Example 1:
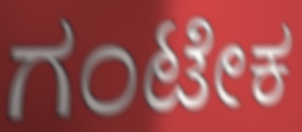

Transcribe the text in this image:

ಗಂಟೇಕ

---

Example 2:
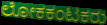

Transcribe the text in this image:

ಲೋಕಕಂಟಕರು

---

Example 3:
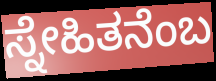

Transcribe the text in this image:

ಸ್ನೇಹಿತನೆಂಬ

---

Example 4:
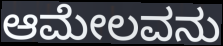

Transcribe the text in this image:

ಆಮೇಲವನು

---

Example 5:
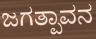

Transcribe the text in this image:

ಜಗತ್ಪಾವನ